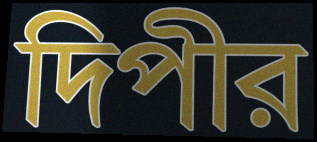
দিপীর